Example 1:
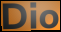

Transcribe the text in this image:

Dio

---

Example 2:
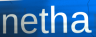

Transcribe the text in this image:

netha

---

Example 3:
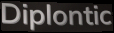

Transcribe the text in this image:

Diplontic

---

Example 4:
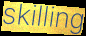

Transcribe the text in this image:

skilling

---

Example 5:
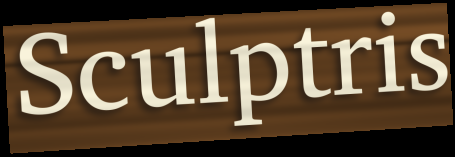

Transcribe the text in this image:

Sculptris